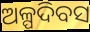
ଅଳ୍ପଦିବସ